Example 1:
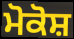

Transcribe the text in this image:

ਮੋਕੋਸ਼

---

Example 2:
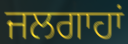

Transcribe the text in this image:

ਜਲਗਾਹਾਂ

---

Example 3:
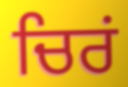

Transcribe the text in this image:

ਚਿਰਂ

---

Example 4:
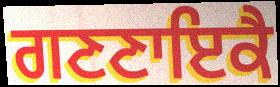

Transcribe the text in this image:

ਗਣਣਾਇਕੈ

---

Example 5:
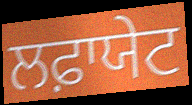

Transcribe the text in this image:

ਲਫ਼ਾਯੇਟ